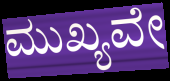
ಮುಖ್ಯವೇ